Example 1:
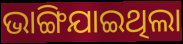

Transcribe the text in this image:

ଭାଙ୍ଗିଯାଇଥିଲା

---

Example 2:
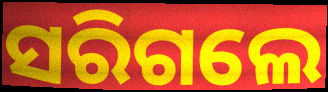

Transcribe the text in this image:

ସରିଗଲେ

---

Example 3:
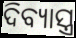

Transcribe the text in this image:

ଦିବ୍ୟାସ୍ତ୍ର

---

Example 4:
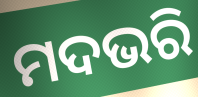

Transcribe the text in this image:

ମଦଭରି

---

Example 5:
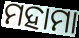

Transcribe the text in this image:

ମହାମା